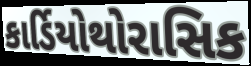
કાર્ડિયોથોરાસિક